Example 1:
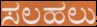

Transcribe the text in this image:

ಸಲಹಲು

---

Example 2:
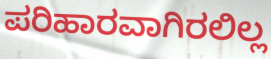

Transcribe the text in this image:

ಪರಿಹಾರವಾಗಿರಲಿಲ್ಲ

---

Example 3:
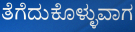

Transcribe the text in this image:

ತೆಗೆದುಕೊಳ್ಳುವಾಗ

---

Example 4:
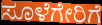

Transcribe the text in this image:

ಸೂಳೆಗೇರಿಗೆ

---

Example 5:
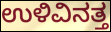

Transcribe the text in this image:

ಉಳಿವಿನತ್ತ